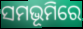
ସମଭୂମିରେ